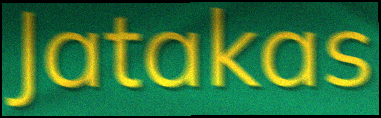
Jatakas